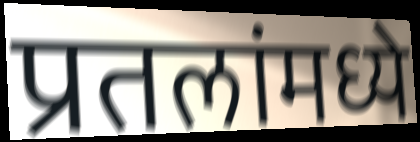
प्रतलांमध्ये